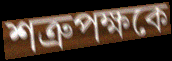
শত্রুপক্ষকে